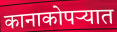
कानाकोपऱ्यात